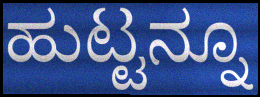
ಹುಟ್ಟನ್ನೂ